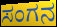
ಸಂಗನ